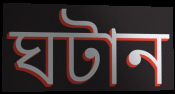
ঘটান